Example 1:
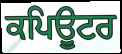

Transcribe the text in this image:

ਕਪਿਊਟਰ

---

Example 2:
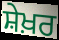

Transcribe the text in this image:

ਸ਼ੇਖ਼ਰ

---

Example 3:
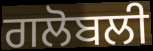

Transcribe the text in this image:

ਗਲੋਬਲੀ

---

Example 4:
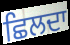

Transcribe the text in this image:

ਛਿਲਦਾ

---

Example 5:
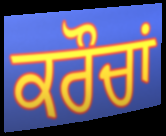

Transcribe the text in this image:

ਕਰੌਚਾਂ